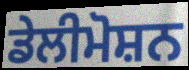
ਡੇਲੀਮੋਸ਼ਨ